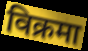
विक्रमा